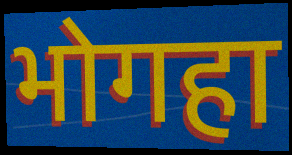
भोगहा